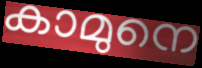
കാമുനെ